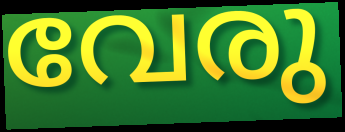
വേരു